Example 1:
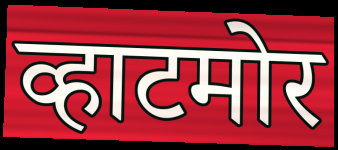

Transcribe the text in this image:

व्हाटमोर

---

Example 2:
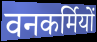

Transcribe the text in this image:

वनकर्मियों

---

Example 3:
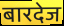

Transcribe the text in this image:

बारदेज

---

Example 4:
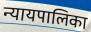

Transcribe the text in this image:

न्यायपालिका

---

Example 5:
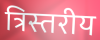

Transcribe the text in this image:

त्रिस्तरीय